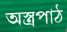
অস্ত্রপাঠ